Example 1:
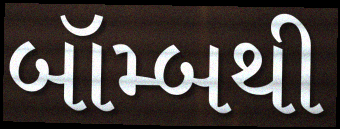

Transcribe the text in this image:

બૉમ્બથી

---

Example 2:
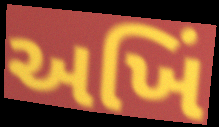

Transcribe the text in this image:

અખિં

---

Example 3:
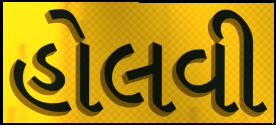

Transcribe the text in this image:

હોલવી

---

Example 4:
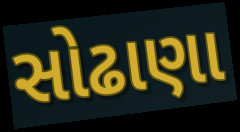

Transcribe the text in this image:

સોઢાણા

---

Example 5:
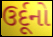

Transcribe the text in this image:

ઉર્દૂનો